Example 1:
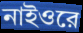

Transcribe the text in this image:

নাইওরে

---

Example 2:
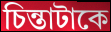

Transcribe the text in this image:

চিন্তাটাকে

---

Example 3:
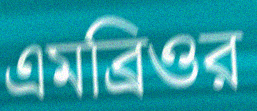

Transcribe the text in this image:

এমব্রিওর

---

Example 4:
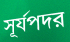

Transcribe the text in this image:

সূর্যপদর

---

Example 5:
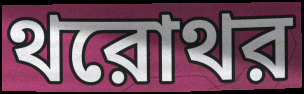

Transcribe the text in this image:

থরোথর